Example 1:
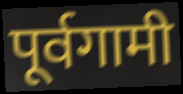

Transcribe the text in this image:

पूर्वगामी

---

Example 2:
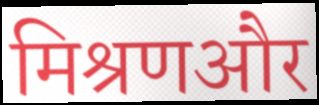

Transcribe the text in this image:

मिश्रणऔर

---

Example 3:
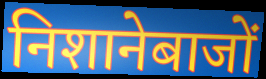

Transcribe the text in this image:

निशानेबाजों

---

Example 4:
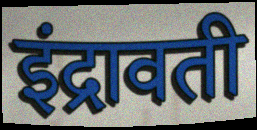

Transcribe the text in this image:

इंद्रावती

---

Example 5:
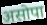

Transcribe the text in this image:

असोपा